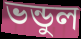
ভন্ডুল